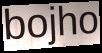
bojho